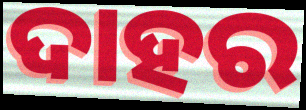
ଦାହର